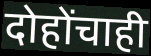
दोहोंचाही